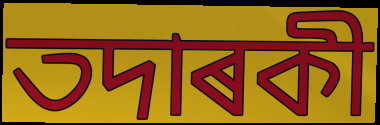
তদাৰকী